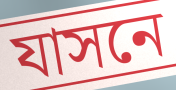
যাসনে